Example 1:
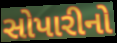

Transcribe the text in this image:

સોપારીનો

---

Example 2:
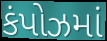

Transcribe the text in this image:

કંપોઝમાં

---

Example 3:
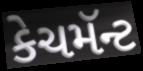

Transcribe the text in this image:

કેચમૅન્ટ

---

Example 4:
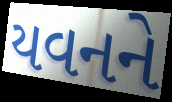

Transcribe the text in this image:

યવનને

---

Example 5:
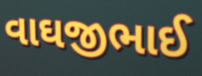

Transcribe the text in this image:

વાઘજીભાઈ